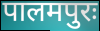
पालमपुरः